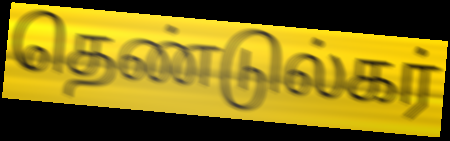
தெண்டுல்கர்